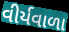
વીર્યવાળા